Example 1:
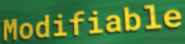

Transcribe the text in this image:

Modifiable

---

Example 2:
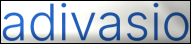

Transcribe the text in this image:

adivasio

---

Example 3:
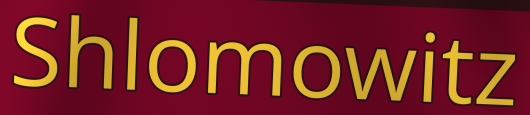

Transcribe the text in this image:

Shlomowitz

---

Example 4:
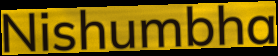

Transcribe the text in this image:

Nishumbha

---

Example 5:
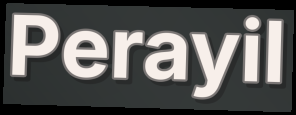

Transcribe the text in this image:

Perayil